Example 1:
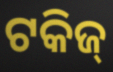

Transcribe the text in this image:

ଟକିଜ୍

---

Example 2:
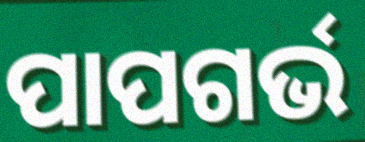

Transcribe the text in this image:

ପାପଗର୍ଭ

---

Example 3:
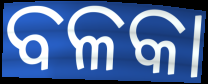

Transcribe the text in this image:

ବଳକା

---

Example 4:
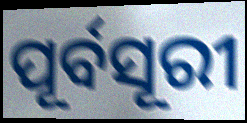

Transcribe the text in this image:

ପୂର୍ବସୂରୀ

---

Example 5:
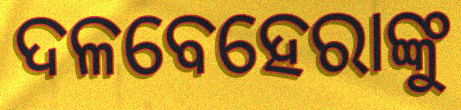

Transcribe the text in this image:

ଦଳବେହେରାଙ୍କୁ